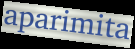
aparimita